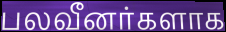
பலவீனர்களாக